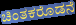
ಚಿಂತಕರೊಡನೆ